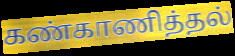
கண்காணித்தல்